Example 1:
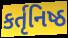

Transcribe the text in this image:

કર્તૃનિષ્ઠ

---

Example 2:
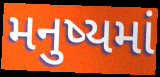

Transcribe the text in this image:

મનુષ્યમાં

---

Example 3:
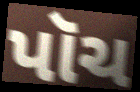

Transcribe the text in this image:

પૉચ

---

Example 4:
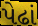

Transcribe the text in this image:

પેઢાં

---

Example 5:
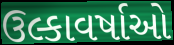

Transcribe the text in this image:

ઉલ્કાવર્ષાઓ